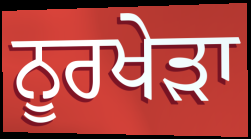
ਨੂਰਖੇੜਾ